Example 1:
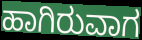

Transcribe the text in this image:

ಹಾಗಿರುವಾಗ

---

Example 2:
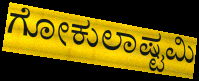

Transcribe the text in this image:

ಗೋಕುಲಾಷ್ಟಮಿ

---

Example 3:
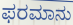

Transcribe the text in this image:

ಫರಮಾನು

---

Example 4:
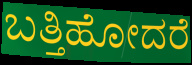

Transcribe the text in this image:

ಬತ್ತಿಹೋದರೆ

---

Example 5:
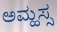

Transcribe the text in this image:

ಅಮ್ಹಸ್ಸ